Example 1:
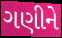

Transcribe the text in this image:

ગણીને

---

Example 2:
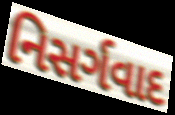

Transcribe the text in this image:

નિસર્ગવાદ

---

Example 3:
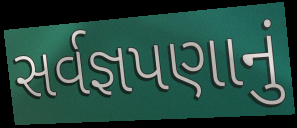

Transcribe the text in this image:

સર્વજ્ઞપણાનું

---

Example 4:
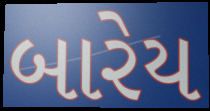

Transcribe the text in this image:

બારેય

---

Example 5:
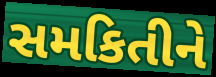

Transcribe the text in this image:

સમકિતીને